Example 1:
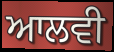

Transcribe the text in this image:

ਆਲਵੀ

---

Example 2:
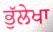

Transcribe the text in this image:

ਭੁੱਲੇਖਾ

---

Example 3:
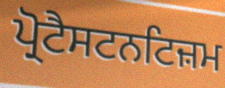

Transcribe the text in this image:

ਪ੍ਰੋਟੈਸਟਨਟਿਜ਼ਮ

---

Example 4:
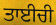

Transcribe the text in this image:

ਤਾਈਚੀ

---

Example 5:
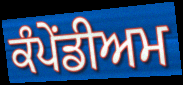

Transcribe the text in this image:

ਕੰਪੇਂਡੀਅਮ